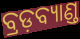
ବ୍ରଡ଼ବ୍ୟାଣ୍ଡ